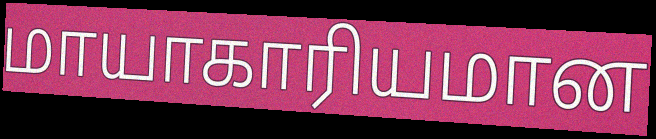
மாயாகாரியமான